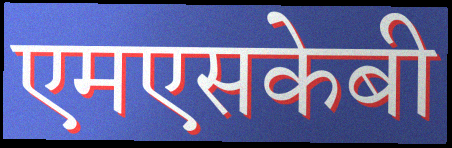
एमएसकेबी